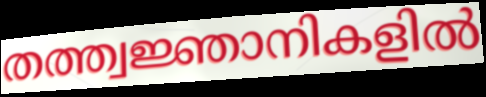
തത്ത്വജ്ഞാനികളിൽ